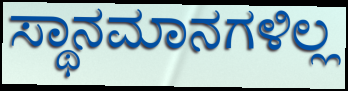
ಸ್ಥಾನಮಾನಗಳಿಲ್ಲ